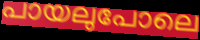
പായലുപോലെ